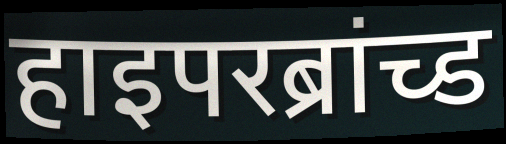
हाइपरब्रांच्ड